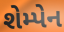
શેમ્પેન